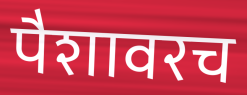
पैशावरच